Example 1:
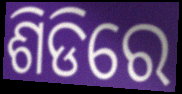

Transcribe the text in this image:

ଶିଡିରେ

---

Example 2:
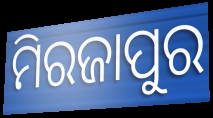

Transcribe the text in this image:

ମିରଜାପୁର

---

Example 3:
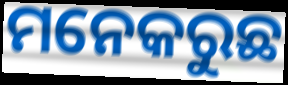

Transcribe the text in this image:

ମନେକରୁଛ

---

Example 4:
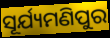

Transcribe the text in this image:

ସୂର୍ଯ୍ୟମଣିପୁର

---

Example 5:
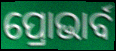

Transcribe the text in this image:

ପ୍ରୋଭାର୍ବ